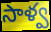
సాళ్వ